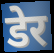
डेर